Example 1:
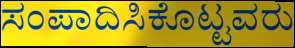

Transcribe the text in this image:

ಸಂಪಾದಿಸಿಕೊಟ್ಟವರು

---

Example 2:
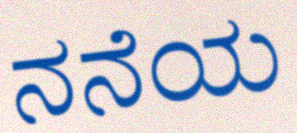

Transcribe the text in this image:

ನನೆಯ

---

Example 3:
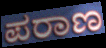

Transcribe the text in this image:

ಪರಾಣ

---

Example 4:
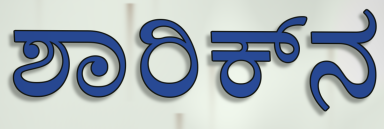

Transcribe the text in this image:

ಶಾರಿಕ್‌ನ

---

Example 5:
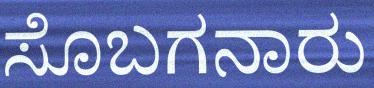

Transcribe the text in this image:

ಸೊಬಗನಾರು